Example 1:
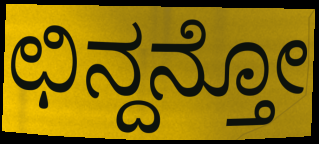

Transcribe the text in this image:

ಛಿನ್ದನ್ತೋ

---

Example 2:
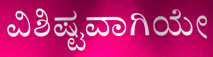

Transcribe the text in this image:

ವಿಶಿಷ್ಟವಾಗಿಯೇ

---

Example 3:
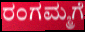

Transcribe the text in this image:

ರಂಗಮ್ಮಗೆ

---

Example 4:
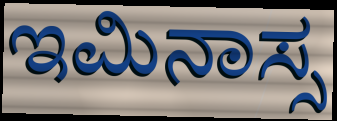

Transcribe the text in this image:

ಇಮಿನಾಸ್ಸ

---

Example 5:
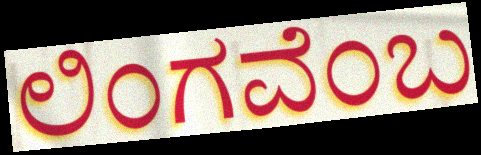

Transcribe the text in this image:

ಲಿಂಗವೆಂಬ